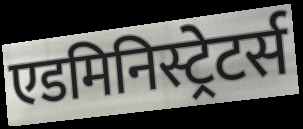
एडमिनिस्ट्रेटर्स